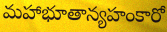
మహాభూతాన్యహంకారో